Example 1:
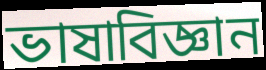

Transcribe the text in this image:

ভাষাবিজ্ঞান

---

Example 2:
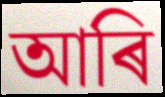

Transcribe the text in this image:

আৰি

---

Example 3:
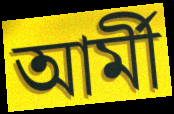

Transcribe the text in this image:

আৰ্মী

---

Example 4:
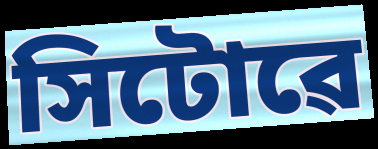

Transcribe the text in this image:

সিটোৱে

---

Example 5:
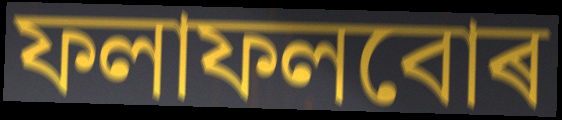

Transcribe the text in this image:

ফলাফলবোৰ